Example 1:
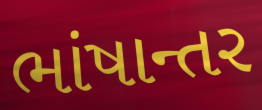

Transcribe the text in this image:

ભાંષાન્તર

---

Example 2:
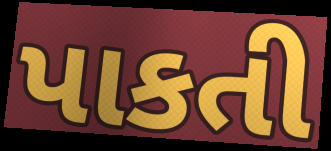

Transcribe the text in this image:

પાકતી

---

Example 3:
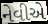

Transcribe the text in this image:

નેવીએ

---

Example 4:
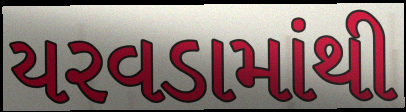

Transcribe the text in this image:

યરવડામાંથી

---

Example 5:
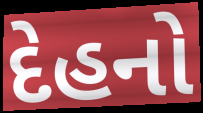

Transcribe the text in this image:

દેહનો